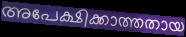
അപേക്ഷിക്കാത്തതായ